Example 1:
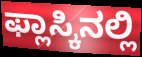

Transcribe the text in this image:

ಫ್ಲಾಸ್ಕಿನಲ್ಲಿ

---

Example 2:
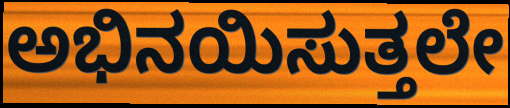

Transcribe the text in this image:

ಅಭಿನಯಿಸುತ್ತಲೇ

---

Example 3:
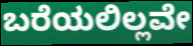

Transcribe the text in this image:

ಬರೆಯಲಿಲ್ಲವೇ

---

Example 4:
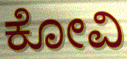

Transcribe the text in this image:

ಕೋವಿ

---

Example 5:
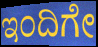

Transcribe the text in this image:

ಇಂದಿಗೇ